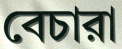
বেচারা